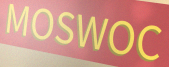
MOSWOC